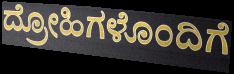
ದ್ರೋಹಿಗಳೊಂದಿಗೆ